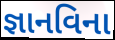
જ્ઞાનવિના